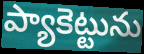
ప్యాకెట్టును